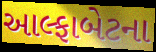
આલ્ફાબેટના